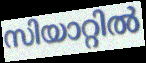
സിയാറ്റിൽ